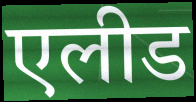
एलीड